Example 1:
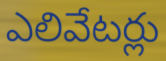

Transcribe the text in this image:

ఎలివేటర్లు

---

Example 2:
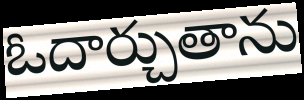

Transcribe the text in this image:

ఓదార్చుతాను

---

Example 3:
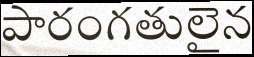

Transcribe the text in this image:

పారంగతులైన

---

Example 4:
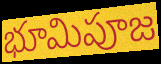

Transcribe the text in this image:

భూమిపూజ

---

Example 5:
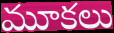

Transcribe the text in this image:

మూకలు